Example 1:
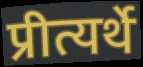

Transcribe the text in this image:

प्रीत्यर्थे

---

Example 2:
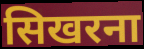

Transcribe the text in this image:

सिखरना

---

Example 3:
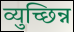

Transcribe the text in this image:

व्युच्छिन्न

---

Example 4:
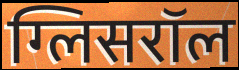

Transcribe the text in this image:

ग्लिसरॉल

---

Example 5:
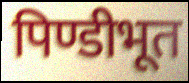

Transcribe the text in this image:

पिण्डीभूत